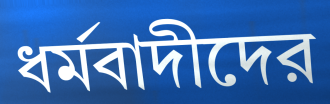
ধর্মবাদীদের